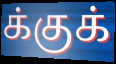
க்குக்